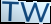
TW